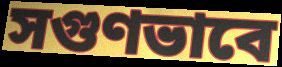
সগুণভাবে